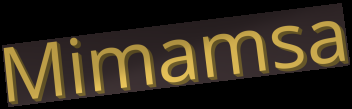
Mimamsa